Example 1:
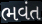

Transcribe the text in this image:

ભવંત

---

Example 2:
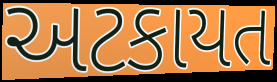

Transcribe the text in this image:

અટકાયત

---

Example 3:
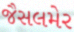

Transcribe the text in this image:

જૈસલમેર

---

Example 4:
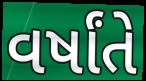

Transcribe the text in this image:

વર્ષાંતે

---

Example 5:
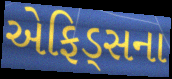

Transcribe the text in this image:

એફિડ્સના